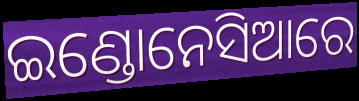
ଇଣ୍ଡୋନେସିଆରେ